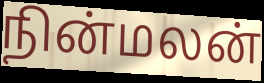
நின்மலன்